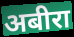
अबीरा